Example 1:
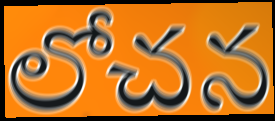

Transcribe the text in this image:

లోచన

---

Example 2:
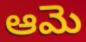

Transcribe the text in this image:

ఆమె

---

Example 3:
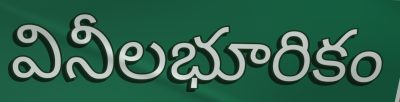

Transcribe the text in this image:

వినీలభూరికం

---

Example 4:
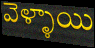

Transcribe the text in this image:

వెళ్ళాయి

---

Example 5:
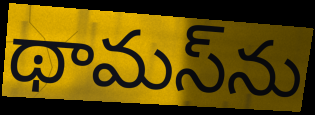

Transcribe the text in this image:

థామస్‌ను